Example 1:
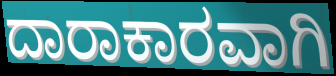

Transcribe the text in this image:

ದಾರಾಕಾರವಾಗಿ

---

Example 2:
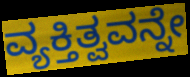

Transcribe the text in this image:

ವ್ಯಕ್ತಿತ್ವವನ್ನೇ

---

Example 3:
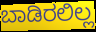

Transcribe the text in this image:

ಬಾಡಿರಲಿಲ್ಲ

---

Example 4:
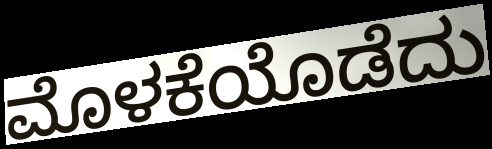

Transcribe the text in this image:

ಮೊಳಕೆಯೊಡೆದು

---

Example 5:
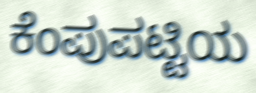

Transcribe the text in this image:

ಕೆಂಪುಪಟ್ಟಿಯ